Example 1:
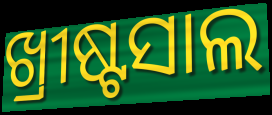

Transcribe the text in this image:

ଖ୍ରୀଷ୍ଟସାଲ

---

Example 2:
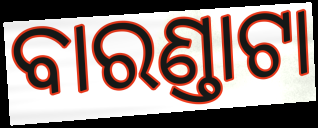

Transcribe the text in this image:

ବାରଣ୍ଡାଟା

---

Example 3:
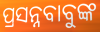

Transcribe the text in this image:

ପ୍ରସନ୍ନବାବୁଙ୍କ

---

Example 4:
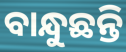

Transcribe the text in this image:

ବାନ୍ଧୁଛନ୍ତି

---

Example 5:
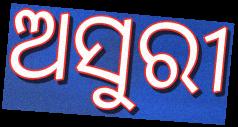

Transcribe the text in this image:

ଅସୁରୀ